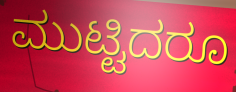
ಮುಟ್ಟಿದರೂ